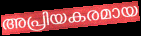
അപ്രിയകരമായ